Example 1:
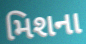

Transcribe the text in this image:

મિશના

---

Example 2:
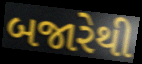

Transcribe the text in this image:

બજારેથી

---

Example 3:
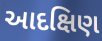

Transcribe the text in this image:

આદક્ષિણ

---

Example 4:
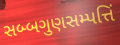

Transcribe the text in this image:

સબ્બગુણસમ્પત્તિં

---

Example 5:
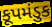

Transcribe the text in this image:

કૂપમંડુક